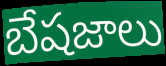
బేషజాలు